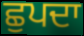
ਛੁਪਦਾ